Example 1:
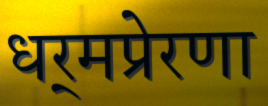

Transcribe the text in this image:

धर्मप्रेरणा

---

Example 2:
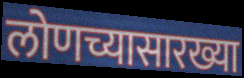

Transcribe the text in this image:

लोणच्यासारख्या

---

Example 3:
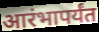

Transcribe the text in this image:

आरंभापर्यंत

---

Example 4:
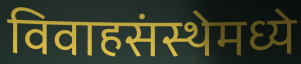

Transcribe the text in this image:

विवाहसंस्थेमध्ये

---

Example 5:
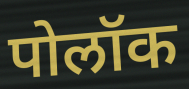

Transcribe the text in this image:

पोलॉक